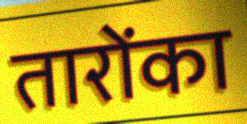
तारोंका